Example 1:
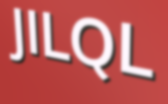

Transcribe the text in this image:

JILQL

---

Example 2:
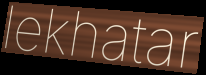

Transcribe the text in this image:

lekhatar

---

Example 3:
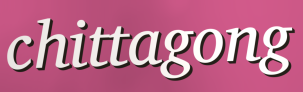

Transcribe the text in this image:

chittagong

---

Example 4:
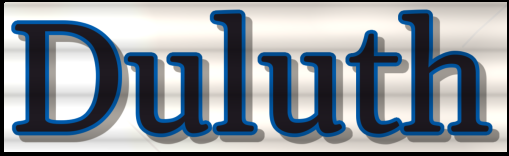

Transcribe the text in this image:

Duluth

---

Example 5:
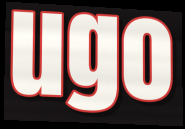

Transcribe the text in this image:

ugo